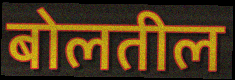
बोलतील